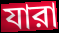
যারা